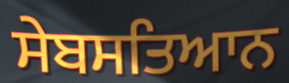
ਸੇਬਸਤਿਆਨ